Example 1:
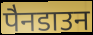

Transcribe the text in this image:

पैनडाउन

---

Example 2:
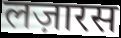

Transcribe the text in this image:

लज़ारस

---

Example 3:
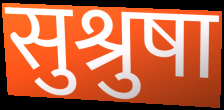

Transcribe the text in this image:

सुश्रुषा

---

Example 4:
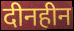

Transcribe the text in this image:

दीनहीन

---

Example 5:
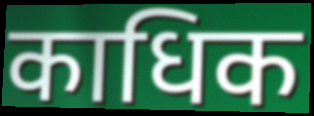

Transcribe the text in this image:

काधिक